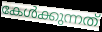
കേൾക്കുന്നത്